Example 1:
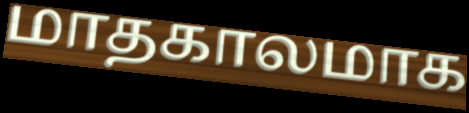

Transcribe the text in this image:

மாதகாலமாக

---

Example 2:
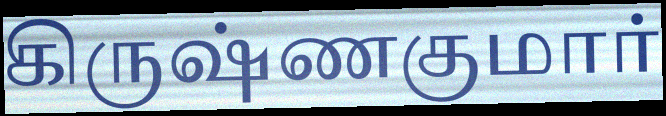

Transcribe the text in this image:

கிருஷ்ணகுமார்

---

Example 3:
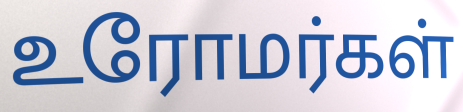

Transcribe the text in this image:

உரோமர்கள்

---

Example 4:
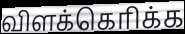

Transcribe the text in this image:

விளக்கெரிக்க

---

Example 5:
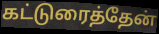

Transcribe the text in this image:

கட்டுரைத்தேன்